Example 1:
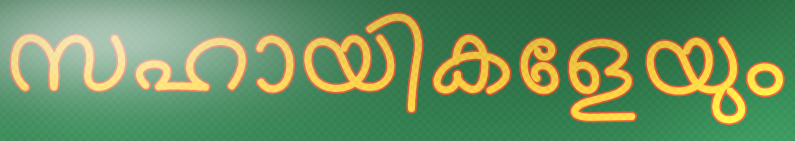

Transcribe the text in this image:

സഹായികളേയും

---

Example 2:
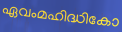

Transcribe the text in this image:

ഏവംമഹിദ്ധികോ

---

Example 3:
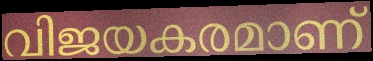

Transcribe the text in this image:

വിജയകരമാണ്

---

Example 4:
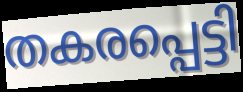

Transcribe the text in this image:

തകരപ്പെട്ടി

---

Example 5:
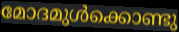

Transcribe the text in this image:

മോദമുൾക്കൊണ്ടു